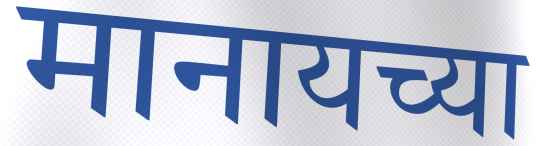
मानायच्या